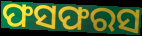
ଫସଫରସ